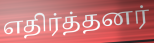
எதிர்த்தனர்